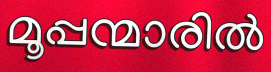
മൂപ്പന്മാരിൽ